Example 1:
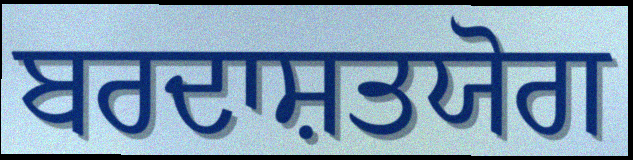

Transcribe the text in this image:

ਬਰਦਾਸ਼ਤਯੋਗ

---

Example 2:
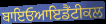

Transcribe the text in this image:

ਬਾਇਓਆਇਡੈਂਟੀਕਲ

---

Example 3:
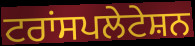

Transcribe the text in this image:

ਟਰਾਂਸਪਲੇਟੇਸ਼ਨ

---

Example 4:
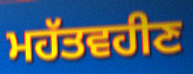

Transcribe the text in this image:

ਮਹੱਤਵਹੀਣ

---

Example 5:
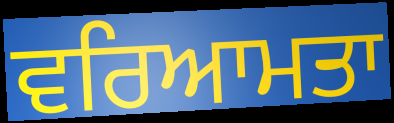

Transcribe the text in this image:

ਵਰਿਆਮਤਾ